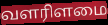
வளரிளமை